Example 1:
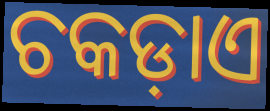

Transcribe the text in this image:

ଚକଡ଼ାଏ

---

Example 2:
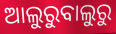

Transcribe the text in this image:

ଆଲୁରୁବାଲୁରୁ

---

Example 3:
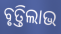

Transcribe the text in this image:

ବୃତ୍ତିଲାଭ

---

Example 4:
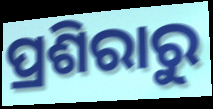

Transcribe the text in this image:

ପ୍ରଶିରାରୁ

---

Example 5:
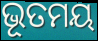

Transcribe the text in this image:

ଭୂତମୟ